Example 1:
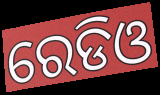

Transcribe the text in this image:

ରେଡିଓ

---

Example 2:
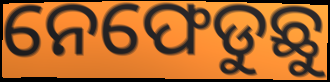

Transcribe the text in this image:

ନେଫେଡୁଛୁ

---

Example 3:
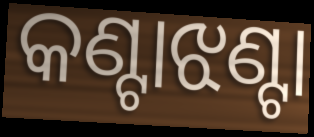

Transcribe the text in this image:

କଣ୍ଟାଝଣ୍ଟା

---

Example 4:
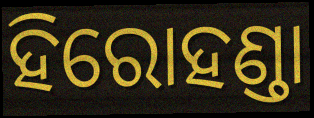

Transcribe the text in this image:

ହିରୋହଣ୍ଡା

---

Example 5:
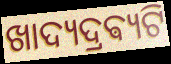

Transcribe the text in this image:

ଖାଦ୍ୟଦ୍ରଵ୍ୟଟି